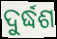
ଦୁର୍ଦ୍ଧଶ